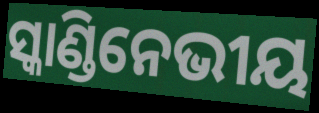
ସ୍କାଣ୍ଡିନେଭୀୟ